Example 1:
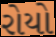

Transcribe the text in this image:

રોયો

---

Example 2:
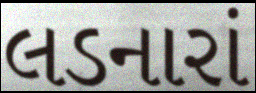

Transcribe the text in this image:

લડનારાં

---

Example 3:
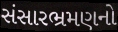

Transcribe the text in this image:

સંસારભ્રમણનો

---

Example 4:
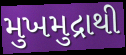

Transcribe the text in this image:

મુખમુદ્રાથી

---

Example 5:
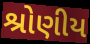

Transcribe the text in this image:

શ્રોણીય